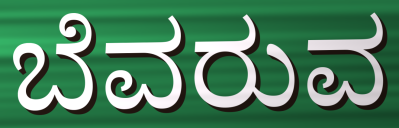
ಬೆವರುವ